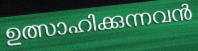
ഉത്സാഹിക്കുന്നവൻ